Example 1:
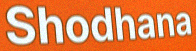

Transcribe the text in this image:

Shodhana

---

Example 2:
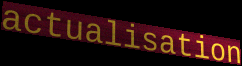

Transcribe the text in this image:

actualisation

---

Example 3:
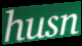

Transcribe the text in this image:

husn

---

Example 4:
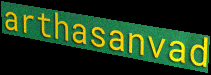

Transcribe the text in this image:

arthasanvad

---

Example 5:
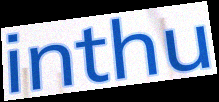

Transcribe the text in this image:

inthu